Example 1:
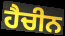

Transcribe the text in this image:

ਹੈਚੀਨ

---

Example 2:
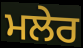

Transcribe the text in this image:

ਮਲੇਰ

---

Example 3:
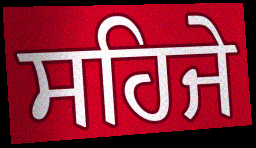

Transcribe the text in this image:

ਸਹਿਜੇ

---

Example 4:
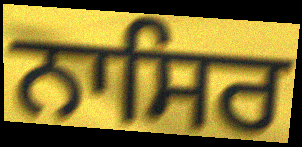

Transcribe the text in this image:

ਨਾਸਿਰ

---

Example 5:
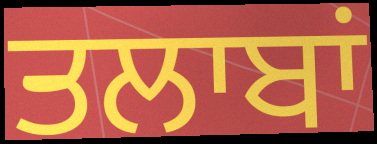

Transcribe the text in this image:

ਤਲਾਬਾਂ